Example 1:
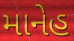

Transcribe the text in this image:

માનેહ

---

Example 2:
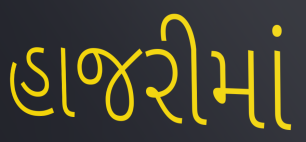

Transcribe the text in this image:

હાજરીમાં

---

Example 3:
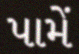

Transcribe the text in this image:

પામેં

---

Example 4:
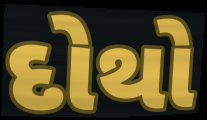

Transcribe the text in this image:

દોથો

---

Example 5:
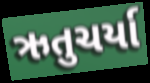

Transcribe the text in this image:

ઋતુચર્યા